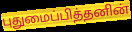
புதுமைப்பித்தனின்